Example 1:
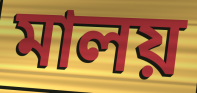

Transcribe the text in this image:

মালয়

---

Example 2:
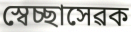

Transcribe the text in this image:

স্বেচ্ছাসেৱক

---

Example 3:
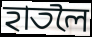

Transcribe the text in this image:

হাতলৈ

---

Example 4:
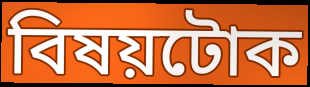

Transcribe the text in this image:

বিষয়টোক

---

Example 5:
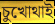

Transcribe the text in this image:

চুখোথাই